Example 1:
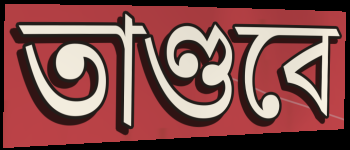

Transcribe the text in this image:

তাণ্ডবে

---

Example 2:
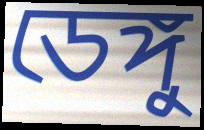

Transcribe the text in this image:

ডেঙ্গু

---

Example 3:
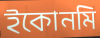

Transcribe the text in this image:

ইকোনমি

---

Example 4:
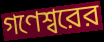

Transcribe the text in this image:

গণেশ্বরের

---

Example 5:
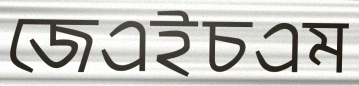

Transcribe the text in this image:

জেএইচএম